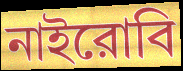
নাইরোবি